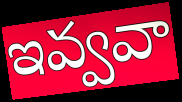
ఇవ్వవా